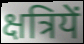
क्षत्रियें